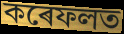
কৰেফলত